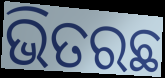
ଭିତରଛ